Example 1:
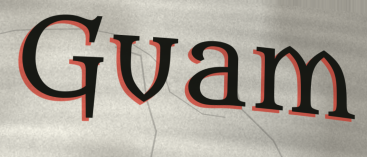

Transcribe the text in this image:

Guam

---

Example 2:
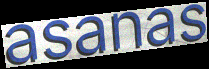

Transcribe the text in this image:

asanas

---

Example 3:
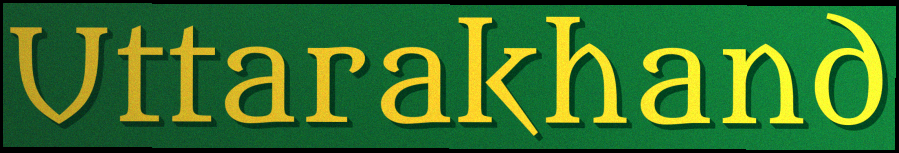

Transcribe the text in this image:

Uttarakhand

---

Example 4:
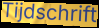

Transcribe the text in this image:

Tijdschrift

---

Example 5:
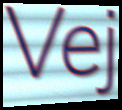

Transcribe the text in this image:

Vej